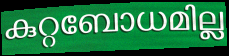
കുറ്റബോധമില്ല